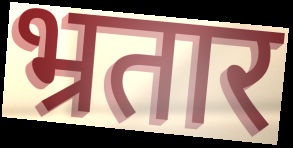
भ्रतार